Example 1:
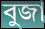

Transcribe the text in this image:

বুজা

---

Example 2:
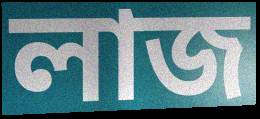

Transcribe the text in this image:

লাজ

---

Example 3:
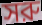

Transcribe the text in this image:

সৰু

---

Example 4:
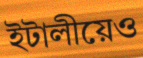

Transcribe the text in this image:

ইটালীয়েও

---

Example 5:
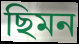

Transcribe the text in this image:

ছিমন